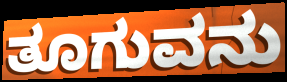
ತೂಗುವನು